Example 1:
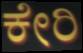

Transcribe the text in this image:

ಕೇರಿ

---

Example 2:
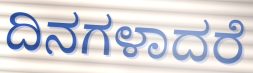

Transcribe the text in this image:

ದಿನಗಳಾದರೆ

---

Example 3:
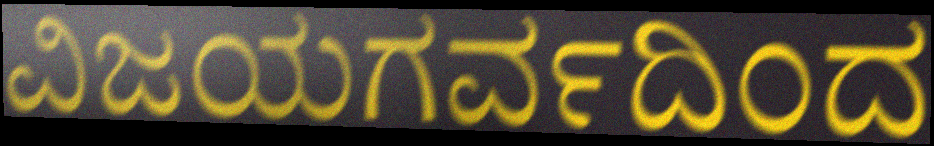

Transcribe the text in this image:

ವಿಜಯಗರ್ವದಿಂದ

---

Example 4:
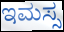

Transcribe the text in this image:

ಇಮಸ್ಸ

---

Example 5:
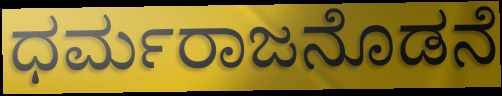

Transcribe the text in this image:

ಧರ್ಮರಾಜನೊಡನೆ